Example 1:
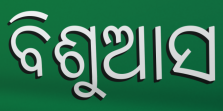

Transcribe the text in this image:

ବିଶୁଆସ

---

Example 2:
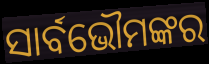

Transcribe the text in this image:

ସାର୍ବଭୌମଙ୍କର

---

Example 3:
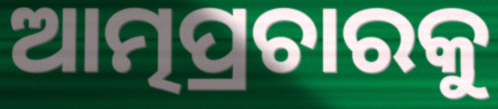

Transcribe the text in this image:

ଆତ୍ମପ୍ରଚାରକୁ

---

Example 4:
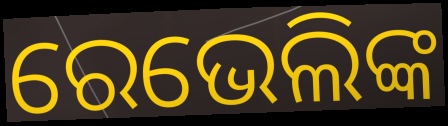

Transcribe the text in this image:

ରେଭେଲିଙ୍କ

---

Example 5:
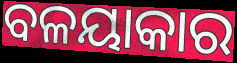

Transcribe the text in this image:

ବଳୟାକାର